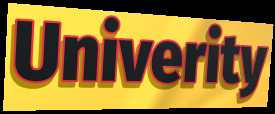
Univerity